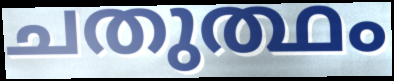
ചതുത്ഥം